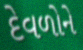
દેવળોને